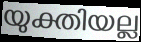
യുക്തിയല്ല